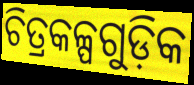
ଚିତ୍ରକଳ୍ପଗୁଡ଼ିକ